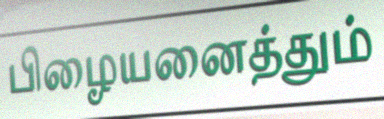
பிழையனைத்தும்